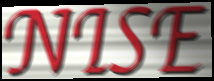
NISE